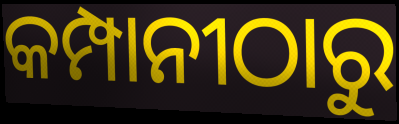
କମ୍ପାନୀଠାରୁ